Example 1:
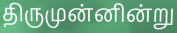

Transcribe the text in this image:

திருமுன்னின்று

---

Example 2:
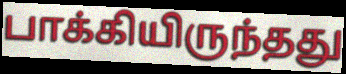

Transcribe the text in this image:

பாக்கியிருந்தது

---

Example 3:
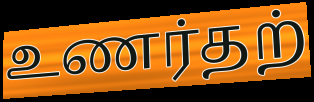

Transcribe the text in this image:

உணர்தற்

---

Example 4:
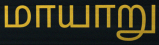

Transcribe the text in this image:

மாயாறு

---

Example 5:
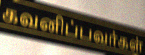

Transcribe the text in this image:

கவனிப்பவர்கள்